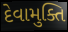
દેવામુક્તિ